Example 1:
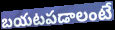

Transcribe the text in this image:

బయటపడాలంటే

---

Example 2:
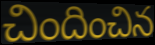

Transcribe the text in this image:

చిందించిన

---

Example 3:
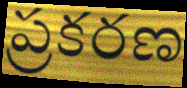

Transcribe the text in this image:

ప్రకరణ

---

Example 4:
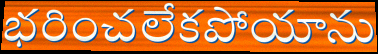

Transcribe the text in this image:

భరించలేకపోయాను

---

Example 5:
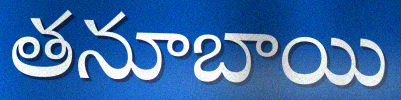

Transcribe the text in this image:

తనూబాయి